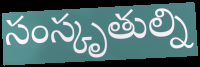
సంస్కృతుల్ని